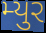
મ્યુર